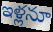
ఇళ్లనూ